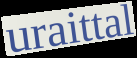
uraittal